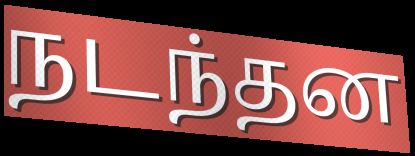
நடந்தன